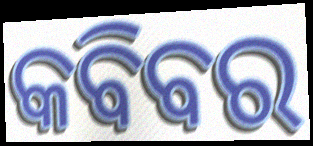
କବିବର